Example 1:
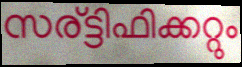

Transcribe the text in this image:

സര്ട്ടിഫിക്കറ്റും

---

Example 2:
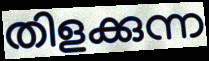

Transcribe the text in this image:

തിളക്കുന്ന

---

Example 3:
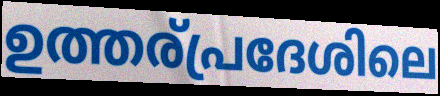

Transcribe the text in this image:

ഉത്തര്പ്രദേശിലെ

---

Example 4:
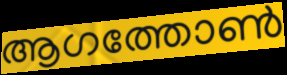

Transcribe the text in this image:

ആഗത്തോൺ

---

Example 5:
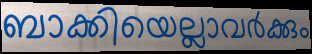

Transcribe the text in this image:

ബാക്കിയെല്ലാവർക്കും